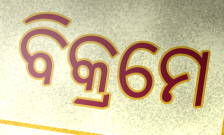
ବିକ୍ରମେ